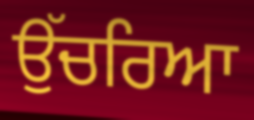
ਉੱਚਰਿਆ